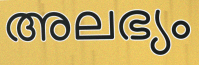
അലഭ്യം